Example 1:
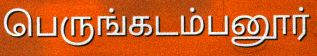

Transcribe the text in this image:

பெருங்கடம்பனூர்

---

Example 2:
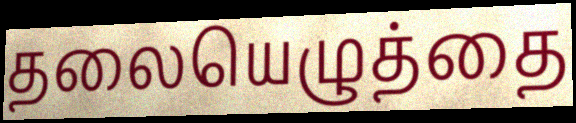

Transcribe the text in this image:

தலையெழுத்தை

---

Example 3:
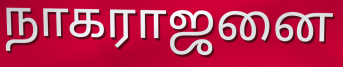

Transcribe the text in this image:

நாகராஜனை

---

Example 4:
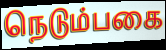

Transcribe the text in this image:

நெடும்பகை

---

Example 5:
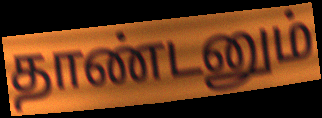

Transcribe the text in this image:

தாண்டனும்